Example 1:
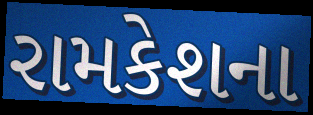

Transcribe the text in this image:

રામકેશના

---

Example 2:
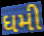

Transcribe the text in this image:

ધમી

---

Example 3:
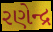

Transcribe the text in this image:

રણેન્દ્ર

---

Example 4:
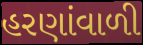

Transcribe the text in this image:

હરણાંવાળી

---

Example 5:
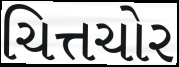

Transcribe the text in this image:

ચિત્તચોર